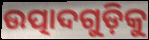
ଉତ୍ପାଦଗୁଡ଼ିକୁ